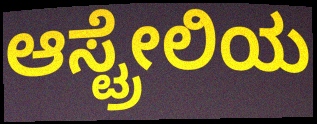
ಆಸ್ಟ್ರೇಲಿಯ